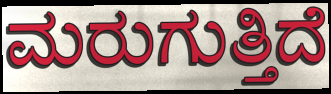
ಮರುಗುತ್ತಿದೆ